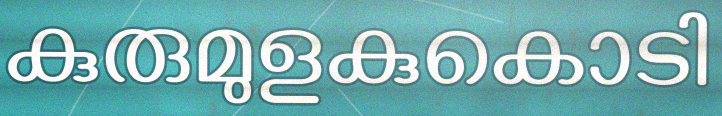
കുരുമുളകുകൊടി